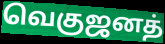
வெகுஜனத்